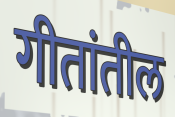
गीतांतील